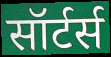
सॉर्टर्स